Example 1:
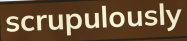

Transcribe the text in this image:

scrupulously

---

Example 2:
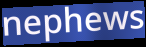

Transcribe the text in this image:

nephews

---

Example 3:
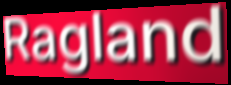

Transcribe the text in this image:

Ragland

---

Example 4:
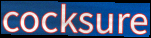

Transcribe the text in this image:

cocksure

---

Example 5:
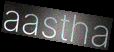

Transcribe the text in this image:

aastha